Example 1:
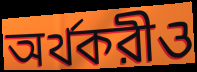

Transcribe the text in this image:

অর্থকরীও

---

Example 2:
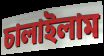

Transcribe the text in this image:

চালাইলাম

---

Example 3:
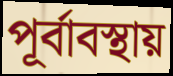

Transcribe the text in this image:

পূর্বাবস্থায়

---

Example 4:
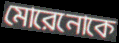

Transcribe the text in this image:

মোরেনোকে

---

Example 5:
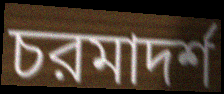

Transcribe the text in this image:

চরমাদর্শ